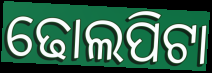
ଢୋଲପିଟା